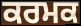
ਕਰਮਕ